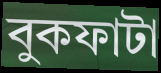
বুকফাটা